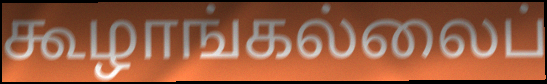
கூழாங்கல்லைப்